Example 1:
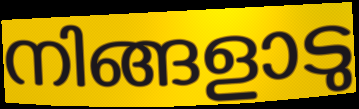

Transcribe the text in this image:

നിങ്ങളാടു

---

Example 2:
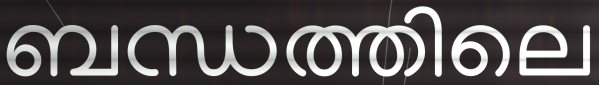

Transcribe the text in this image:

ബന്ധത്തിലെ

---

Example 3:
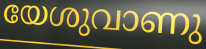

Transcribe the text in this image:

യേശുവാണു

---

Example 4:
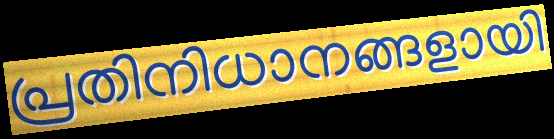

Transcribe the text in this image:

പ്രതിനിധാനങ്ങളായി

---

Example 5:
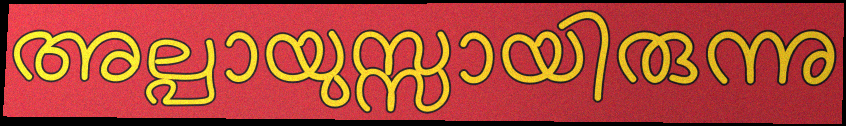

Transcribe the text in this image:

അല്പായുസ്സായിരുന്നു